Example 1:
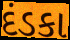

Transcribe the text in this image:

દંડકા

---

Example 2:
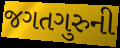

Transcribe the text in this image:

જગતગુરુની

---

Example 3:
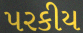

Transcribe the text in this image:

પરકીય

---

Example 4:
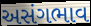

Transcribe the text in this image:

અસંગભાવ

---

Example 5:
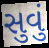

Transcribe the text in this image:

સુવું